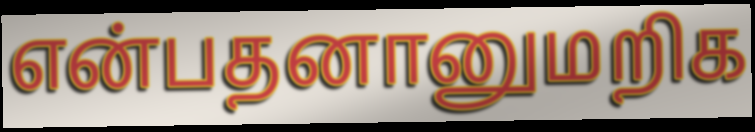
என்பதனானுமறிக